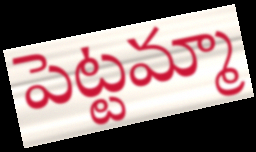
పెట్టమ్మా